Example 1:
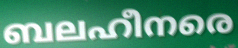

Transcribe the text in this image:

ബലഹീനരെ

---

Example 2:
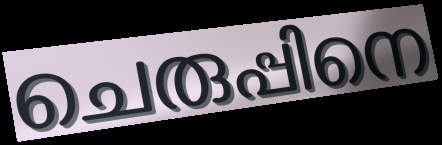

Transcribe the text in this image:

ചെരുപ്പിനെ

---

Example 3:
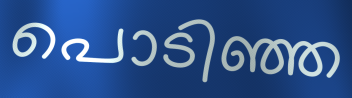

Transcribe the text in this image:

പൊടിഞ്ഞ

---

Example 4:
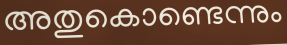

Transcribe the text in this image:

അതുകൊണ്ടെന്നും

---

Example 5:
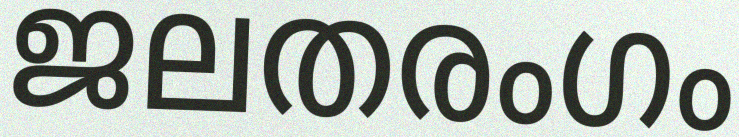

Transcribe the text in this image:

ജലതരംഗം